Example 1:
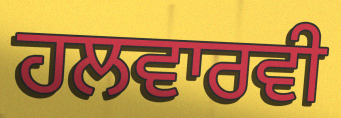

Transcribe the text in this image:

ਹਲਵਾਰਵੀ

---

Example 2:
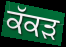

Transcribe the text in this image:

ਕੱਕੜ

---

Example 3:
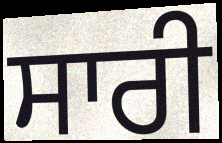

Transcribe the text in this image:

ਸਾਰੀ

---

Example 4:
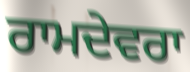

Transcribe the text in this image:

ਰਾਮਦੇਵਰਾ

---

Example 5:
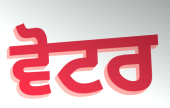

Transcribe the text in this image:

ਵੋਟਰ